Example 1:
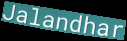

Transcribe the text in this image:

Jalandhar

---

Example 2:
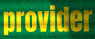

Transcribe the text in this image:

provider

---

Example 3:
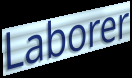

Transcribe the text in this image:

Laborer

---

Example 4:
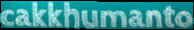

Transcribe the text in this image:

cakkhumanto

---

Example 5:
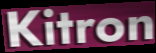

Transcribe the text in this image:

Kitron